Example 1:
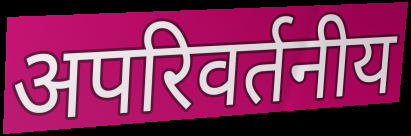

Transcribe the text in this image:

अपरिवर्तनीय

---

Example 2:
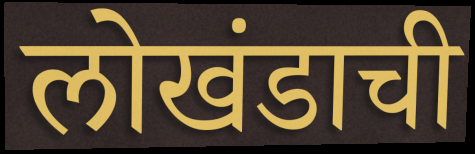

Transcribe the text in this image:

लोखंडाची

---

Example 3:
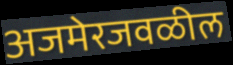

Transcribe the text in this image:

अजमेरजवळील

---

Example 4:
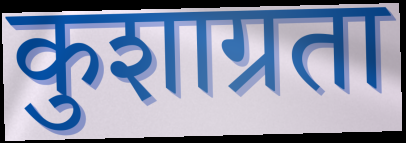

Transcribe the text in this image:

कुशाग्रता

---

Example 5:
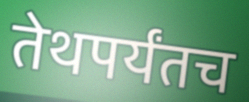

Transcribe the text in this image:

तेथपर्यंतच